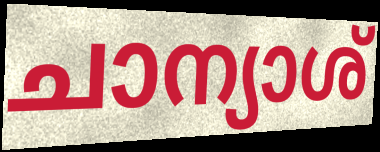
ചാന്യാശ്